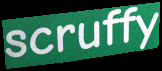
scruffy